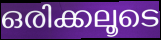
ഒരിക്കലൂടെ